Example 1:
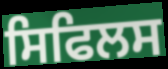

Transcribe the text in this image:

ਸਿਫਿਲਸ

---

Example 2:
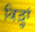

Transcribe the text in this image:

ਕਿੜ੍ਹਾਂ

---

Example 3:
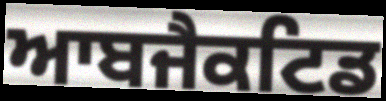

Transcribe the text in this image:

ਆਬਜੈਕਟਿਡ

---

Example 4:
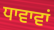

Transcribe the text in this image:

ਧਾਵਾਵਾਂ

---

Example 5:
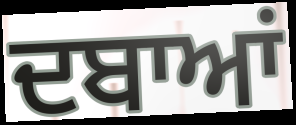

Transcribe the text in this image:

ਦਬਾਆਂ